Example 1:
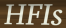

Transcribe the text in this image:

HFIs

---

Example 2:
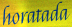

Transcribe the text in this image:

horatada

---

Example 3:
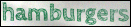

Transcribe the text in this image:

hamburgers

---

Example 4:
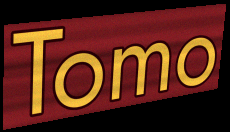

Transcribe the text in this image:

Tomo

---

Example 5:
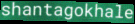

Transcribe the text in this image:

shantagokhale